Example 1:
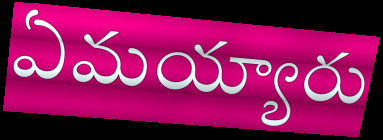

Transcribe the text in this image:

ఏమయ్యారు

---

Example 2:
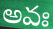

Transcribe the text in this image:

అవః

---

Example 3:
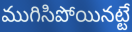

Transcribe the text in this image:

ముగిసిపోయినట్టే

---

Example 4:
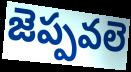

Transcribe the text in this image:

జెప్పవలె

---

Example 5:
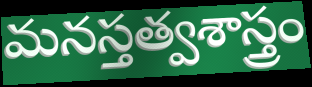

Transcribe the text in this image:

మనస్తత్వశాస్త్రం